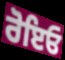
ਰੋਇਓ